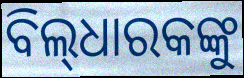
ବିଲ୍‌ଧାରକଙ୍କୁ